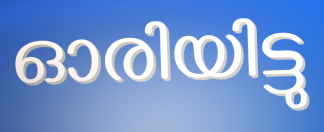
ഓരിയിട്ടു